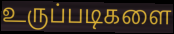
உருப்படிகளை